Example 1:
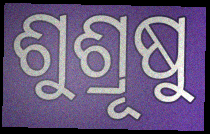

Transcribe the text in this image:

ଶୁଶ୍ରୂଷୁ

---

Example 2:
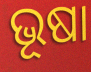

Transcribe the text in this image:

ଭୂଷା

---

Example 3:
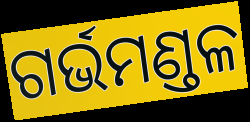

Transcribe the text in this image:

ଗର୍ଭମଣ୍ଡଳ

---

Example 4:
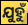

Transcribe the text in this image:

ଯୁହୁଁ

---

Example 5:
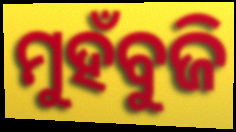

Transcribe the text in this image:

ମୁହଁବୁଜି